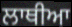
ਲਾਥੀਆ